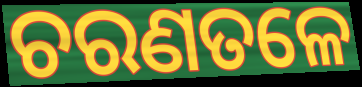
ଚରଣତଳେ